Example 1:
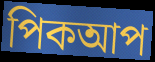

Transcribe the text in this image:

পিকআপ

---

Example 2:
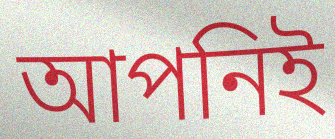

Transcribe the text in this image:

আপনিই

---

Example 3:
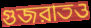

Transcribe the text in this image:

গুজরাতও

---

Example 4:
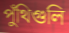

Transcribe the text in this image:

পুঁথিগুলি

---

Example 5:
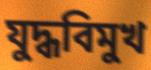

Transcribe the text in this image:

যুদ্ধবিমুখ